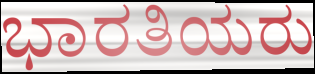
ಭಾರತಿಯರು